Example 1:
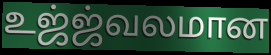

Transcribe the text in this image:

உஜ்ஜ்வலமான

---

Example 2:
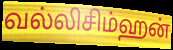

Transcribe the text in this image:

வல்லிசிம்ஹன்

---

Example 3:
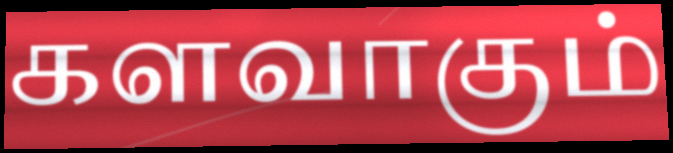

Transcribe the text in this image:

களவாகும்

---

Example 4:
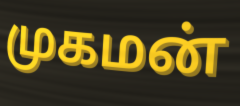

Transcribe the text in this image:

முகமன்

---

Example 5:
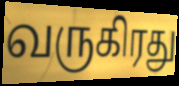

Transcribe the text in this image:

வருகிரது